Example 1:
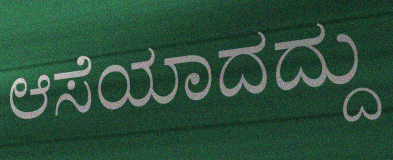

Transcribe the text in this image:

ಆಸೆಯಾದದ್ದು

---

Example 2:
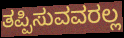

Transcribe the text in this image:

ತಪ್ಪಿಸುವವರಲ್ಲ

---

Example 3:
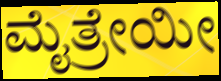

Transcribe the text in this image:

ಮೈತ್ರೇಯೀ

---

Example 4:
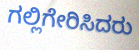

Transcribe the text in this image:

ಗಲ್ಲಿಗೇರಿಸಿದರು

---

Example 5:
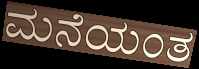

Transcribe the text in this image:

ಮನೆಯಂತ